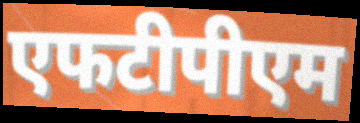
एफटीपीएम